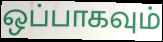
ஒப்பாகவும்